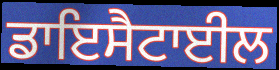
ਡਾਇਸੈਟਾਈਲ